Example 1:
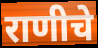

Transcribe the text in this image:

राणीचे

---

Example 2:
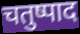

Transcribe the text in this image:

चतुष्पाद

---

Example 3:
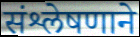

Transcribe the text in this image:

संश्लेषणाने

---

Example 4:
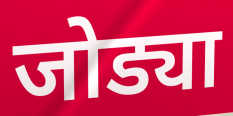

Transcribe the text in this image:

जोड्या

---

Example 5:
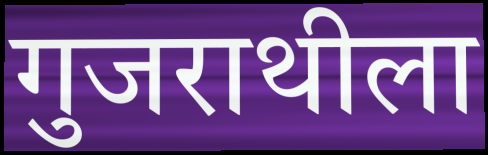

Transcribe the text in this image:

गुजराथीला